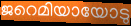
ജറെമിയായോടു